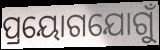
ପ୍ରୟୋଗଯୋଗୁଁ